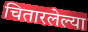
चितारलेल्या